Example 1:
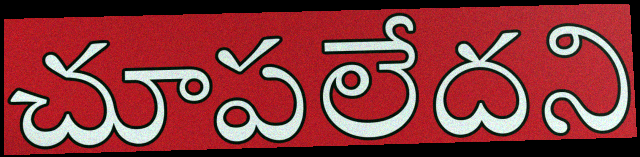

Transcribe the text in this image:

చూపలేదని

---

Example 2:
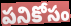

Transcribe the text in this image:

పనికోసం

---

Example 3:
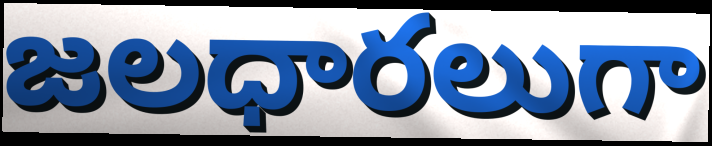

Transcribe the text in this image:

జలధారలుగా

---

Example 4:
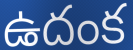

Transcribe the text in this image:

ఉదంక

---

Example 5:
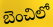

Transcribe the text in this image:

బెంచిలో